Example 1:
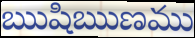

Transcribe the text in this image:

ఋషిఋణము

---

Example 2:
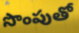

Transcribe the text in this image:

సొంపుతో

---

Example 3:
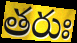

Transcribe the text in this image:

తరుః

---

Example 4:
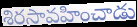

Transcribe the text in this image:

శిరసావహించాడు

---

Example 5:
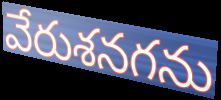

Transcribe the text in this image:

వేరుశనగను